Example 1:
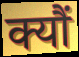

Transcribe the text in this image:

क्यौं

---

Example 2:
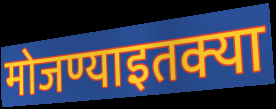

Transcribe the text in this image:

मोजण्याइतक्या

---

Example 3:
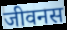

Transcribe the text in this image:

जीवनस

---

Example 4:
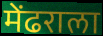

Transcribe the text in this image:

मेंढराला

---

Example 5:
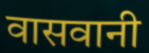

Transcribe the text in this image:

वासवानी